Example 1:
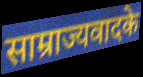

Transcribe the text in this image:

साम्राज्यवादके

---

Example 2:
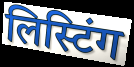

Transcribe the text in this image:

लिस्‍टिंग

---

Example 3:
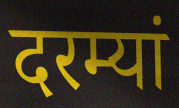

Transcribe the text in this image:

दरम्यां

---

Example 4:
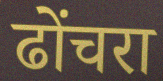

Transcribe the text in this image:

ढोंचरा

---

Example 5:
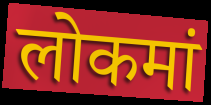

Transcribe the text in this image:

लोकमां